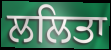
ਲਲਿਤਾ